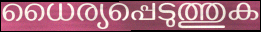
ധൈര്യപ്പെടുത്തുക